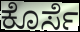
ಕೊರ್ಸೆ